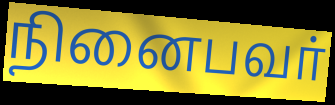
நினைபவர்